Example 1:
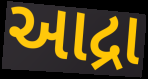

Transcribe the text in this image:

આદ્રા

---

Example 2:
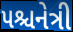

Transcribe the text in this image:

પશ્ચનેત્રી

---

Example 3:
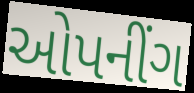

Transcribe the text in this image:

ઓપનીંગ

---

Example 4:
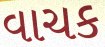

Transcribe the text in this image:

વાચક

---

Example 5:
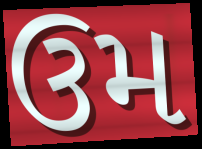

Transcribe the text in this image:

ઉમ